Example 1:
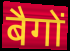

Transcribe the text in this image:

बैगों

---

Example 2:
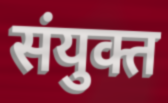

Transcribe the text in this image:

संयुक्त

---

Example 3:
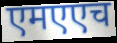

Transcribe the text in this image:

एमएएच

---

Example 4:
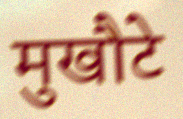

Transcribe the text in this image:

मुखौटे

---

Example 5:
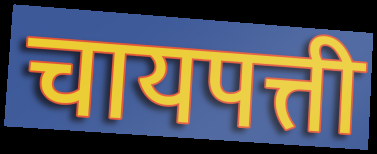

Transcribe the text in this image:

चायपत्ती